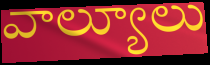
వాల్యూలు